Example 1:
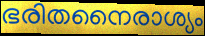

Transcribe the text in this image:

ഭരിതനൈരാശ്യം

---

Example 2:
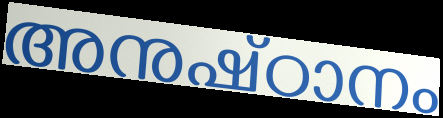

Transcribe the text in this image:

അനുഷ്‌ഠാനം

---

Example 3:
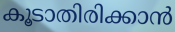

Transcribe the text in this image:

കൂടാതിരിക്കാൻ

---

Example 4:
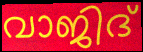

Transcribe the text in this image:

വാജിദ്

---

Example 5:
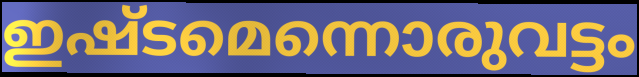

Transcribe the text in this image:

ഇഷ്ടമെന്നൊരുവട്ടം